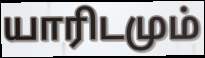
யாரிடமும்